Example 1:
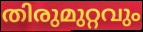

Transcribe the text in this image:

തിരുമുറ്റവും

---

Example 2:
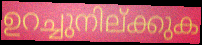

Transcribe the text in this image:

ഉറച്ചുനില്ക്കുക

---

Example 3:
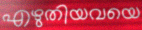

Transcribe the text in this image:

എഴുതിയവയെ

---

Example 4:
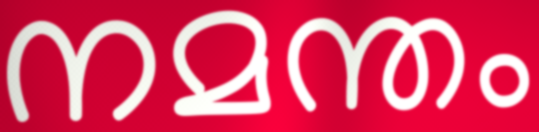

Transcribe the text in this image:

നമന്തം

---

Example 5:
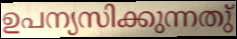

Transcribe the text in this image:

ഉപന്യസിക്കുന്നതു്